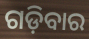
ଗଡ଼ିବାର